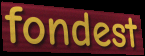
fondest